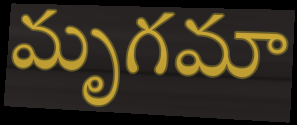
మృగమా